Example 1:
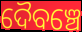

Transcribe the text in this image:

ଦୈବଞ୍ଚେ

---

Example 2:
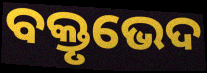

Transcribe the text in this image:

ବକ୍ତୃଭେଦ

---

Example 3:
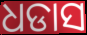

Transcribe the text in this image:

ଧଡାସ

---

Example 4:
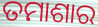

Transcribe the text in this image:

ତମାଶାର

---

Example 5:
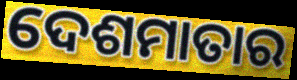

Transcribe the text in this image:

ଦେଶମାତାର